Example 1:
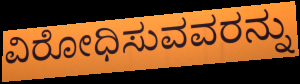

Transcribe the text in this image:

ವಿರೋಧಿಸುವವರನ್ನು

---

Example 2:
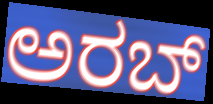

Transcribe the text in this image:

ಅರಬ್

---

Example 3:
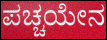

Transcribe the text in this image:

ಪಚ್ಚಯೇನ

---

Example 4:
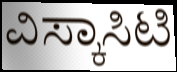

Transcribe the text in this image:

ವಿಸ್ಕಾಸಿಟಿ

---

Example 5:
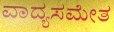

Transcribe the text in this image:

ವಾದ್ಯಸಮೇತ